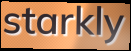
starkly